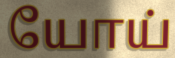
யோய்